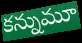
కన్నుమూ